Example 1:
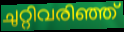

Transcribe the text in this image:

ചുറ്റിവരിഞ്ഞ്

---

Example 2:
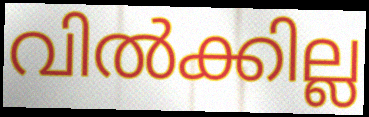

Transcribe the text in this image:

വിൽക്കില്ല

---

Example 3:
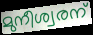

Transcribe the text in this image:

മുനീശ്വരന്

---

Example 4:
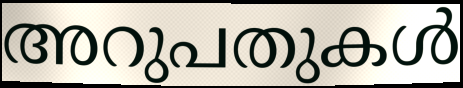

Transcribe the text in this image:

അറുപതുകൾ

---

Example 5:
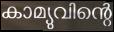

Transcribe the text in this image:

കാമ്യുവിന്റെ